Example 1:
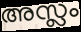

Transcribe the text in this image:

അസ്ലം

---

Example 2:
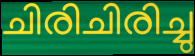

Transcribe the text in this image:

ചിരിചിരിച്ചു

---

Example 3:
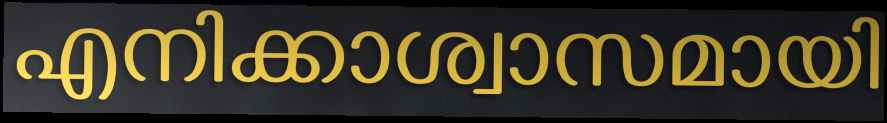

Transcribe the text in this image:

എനിക്കാശ്വാസമായി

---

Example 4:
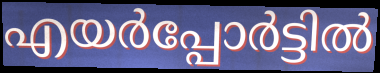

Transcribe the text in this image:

എയർപ്പോർട്ടിൽ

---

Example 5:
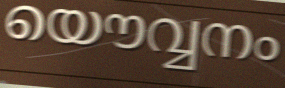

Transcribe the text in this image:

യൌവ്വനം